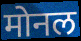
मोनल